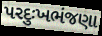
પરદુઃખભંજણા